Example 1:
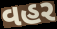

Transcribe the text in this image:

વહર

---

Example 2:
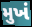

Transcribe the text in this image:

મુખં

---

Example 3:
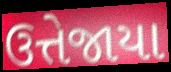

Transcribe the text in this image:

ઉત્તેજાયા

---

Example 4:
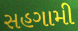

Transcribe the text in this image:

સહગામી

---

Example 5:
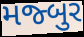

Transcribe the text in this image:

મજ્બુર